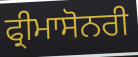
ਫ੍ਰੀਮਾਸੋਨਰੀ